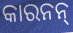
କାରନନ୍